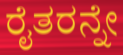
ರೈತರನ್ನೇ